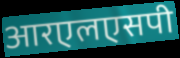
आरएलएसपी